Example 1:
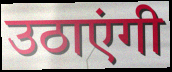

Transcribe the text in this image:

उठाएंगी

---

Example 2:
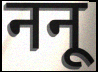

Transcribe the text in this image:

ननू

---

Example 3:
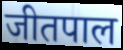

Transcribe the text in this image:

जीतपाल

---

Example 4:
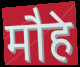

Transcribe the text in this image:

मौहे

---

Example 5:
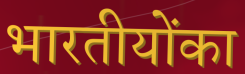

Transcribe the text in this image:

भारतीयोंका